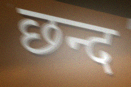
छन्द